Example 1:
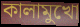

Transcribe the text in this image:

কালামুখো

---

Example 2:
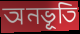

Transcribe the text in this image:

অনভূতি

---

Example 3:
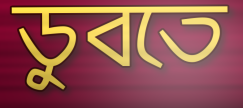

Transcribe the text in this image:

ডুবতে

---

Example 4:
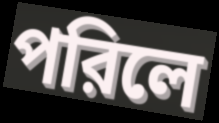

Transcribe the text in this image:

পরিলে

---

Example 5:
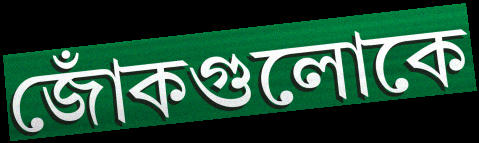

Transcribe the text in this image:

জোঁকগুলোকে